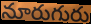
నూరుగురు